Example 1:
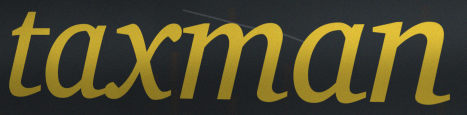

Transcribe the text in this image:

taxman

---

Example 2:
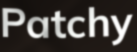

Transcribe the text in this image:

Patchy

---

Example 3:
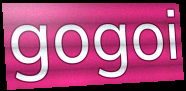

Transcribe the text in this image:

gogoi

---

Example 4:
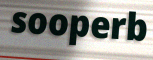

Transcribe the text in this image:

sooperb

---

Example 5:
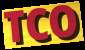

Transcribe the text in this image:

TCO